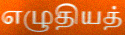
எழுதியத்